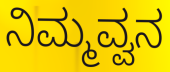
ನಿಮ್ಮವ್ವನ